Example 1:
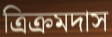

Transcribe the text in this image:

ত্রিক্রমদাস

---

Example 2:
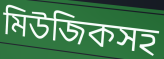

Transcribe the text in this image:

মিউজিকসহ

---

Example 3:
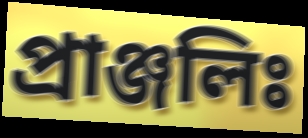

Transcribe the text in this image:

প্রাঞ্জলিঃ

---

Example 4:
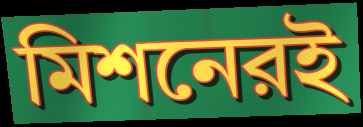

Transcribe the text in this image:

মিশনেরই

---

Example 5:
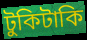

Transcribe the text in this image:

টুকিটাকি